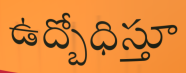
ఉద్బోధిస్తూ